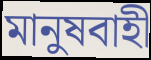
মানুষবাহী